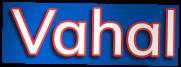
Vahal